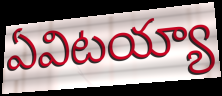
ఏవిటయ్యా